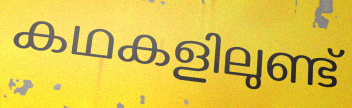
കഥകളിലുണ്ട്